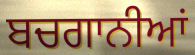
ਬਚਗਾਨੀਆਂ